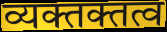
व्यक्तक्तत्व